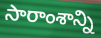
సారాంశాన్ని